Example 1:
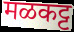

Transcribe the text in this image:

मळकट्ट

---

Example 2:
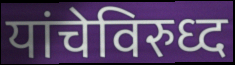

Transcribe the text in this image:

यांचेविरुध्द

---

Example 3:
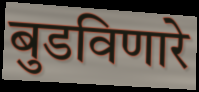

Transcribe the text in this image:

बुडविणारे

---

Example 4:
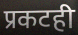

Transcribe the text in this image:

प्रकटही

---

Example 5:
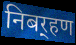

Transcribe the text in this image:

निबर्हण